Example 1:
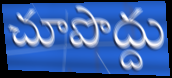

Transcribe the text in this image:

చూపొద్దు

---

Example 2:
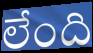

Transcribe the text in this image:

లేంది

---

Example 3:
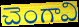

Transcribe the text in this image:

చెంగావి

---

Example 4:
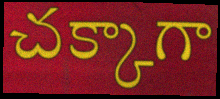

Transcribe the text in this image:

చక్కాగా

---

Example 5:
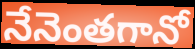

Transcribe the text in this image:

నేనెంతగానో